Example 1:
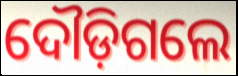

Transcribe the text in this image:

ଦୌଡ଼ିଗଲେ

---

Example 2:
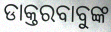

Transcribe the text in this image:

ଡାକ୍ତରବାବୁଙ୍କ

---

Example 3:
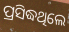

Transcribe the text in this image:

ପ୍ରସିଦ୍ଧଥିଲେ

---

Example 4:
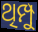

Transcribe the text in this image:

ଥିମ୍ପୁ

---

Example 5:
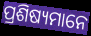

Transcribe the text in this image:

ପ୍ରଶିଷ୍ୟମାନେ